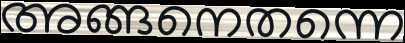
അങ്ങനെതന്നെ